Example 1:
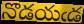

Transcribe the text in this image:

నొడయఁడ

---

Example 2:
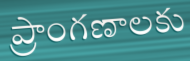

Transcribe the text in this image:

ప్రాంగణాలకు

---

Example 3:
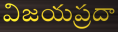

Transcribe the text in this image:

విజయప్రదా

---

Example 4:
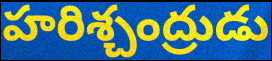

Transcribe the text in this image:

హరిశ్చంద్రుడు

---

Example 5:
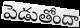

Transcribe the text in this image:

పెడుతోందా